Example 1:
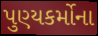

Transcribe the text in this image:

પુણ્યકર્મોના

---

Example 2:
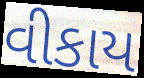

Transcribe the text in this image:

વીકાય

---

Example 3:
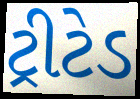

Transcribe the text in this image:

ટ્રીટેડ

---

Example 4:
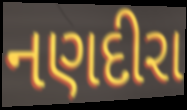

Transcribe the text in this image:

નણદીરા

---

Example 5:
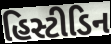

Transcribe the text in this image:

હિસ્ટીડિન